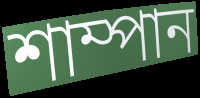
শাম্পান